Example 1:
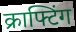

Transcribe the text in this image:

क्राफ्टिंग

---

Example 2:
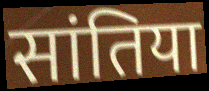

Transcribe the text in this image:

सांतिया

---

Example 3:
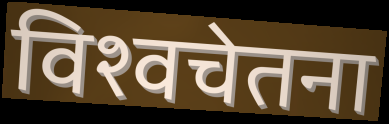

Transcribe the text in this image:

विश्वचेतना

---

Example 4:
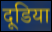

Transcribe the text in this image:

दूडिया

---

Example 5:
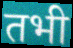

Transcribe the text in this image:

तभी